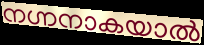
നഗ്നനാകയാൽ